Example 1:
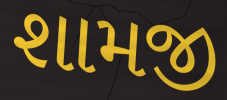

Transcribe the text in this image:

શામજી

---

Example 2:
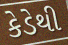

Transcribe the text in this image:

કેડેથી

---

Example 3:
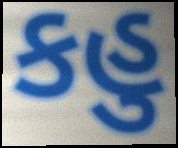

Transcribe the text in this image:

કહુ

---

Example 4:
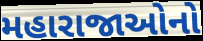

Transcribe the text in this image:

મહારાજાઓનો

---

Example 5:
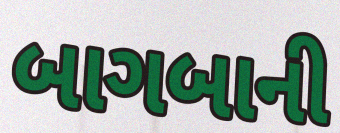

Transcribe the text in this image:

બાગબાની